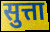
सुत्ता